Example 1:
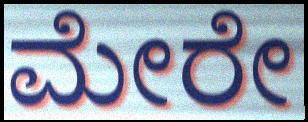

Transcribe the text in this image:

ಮೇರೇ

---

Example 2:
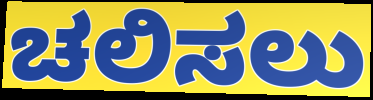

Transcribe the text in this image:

ಚಲಿಸಲು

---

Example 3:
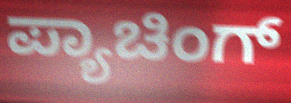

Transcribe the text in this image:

ಪ್ಯಾಚಿಂಗ್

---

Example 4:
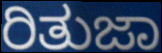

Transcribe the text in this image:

ರಿತುಜಾ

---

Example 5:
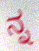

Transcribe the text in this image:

ನ್ನ